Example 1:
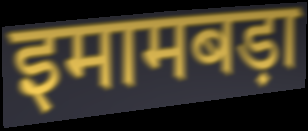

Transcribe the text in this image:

इमामबड़ा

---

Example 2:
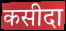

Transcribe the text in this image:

कसीदा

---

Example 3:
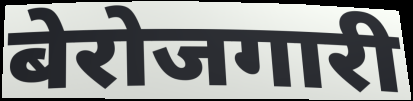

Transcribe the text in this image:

बेरोजगारी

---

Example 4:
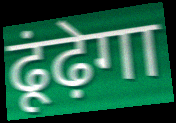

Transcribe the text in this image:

ढूंढ़ेगा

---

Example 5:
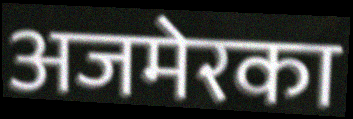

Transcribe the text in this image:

अजमेरका